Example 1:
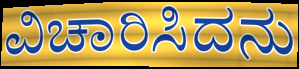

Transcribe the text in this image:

ವಿಚಾರಿಸಿದನು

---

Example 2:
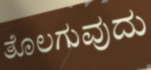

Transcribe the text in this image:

ತೊಲಗುವುದು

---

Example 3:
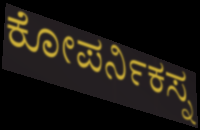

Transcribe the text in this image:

ಕೋಪರ್ನಿಕಸ್ನ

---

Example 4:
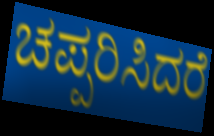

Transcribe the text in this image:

ಚಪ್ಪರಿಸಿದರೆ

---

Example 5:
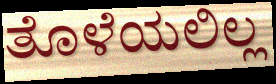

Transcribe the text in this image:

ತೊಳೆಯಲಿಲ್ಲ